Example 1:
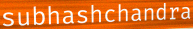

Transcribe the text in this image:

subhashchandra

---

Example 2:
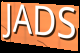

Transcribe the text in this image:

JADS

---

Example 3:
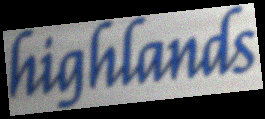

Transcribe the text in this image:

highlands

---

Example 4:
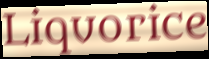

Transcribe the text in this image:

Liquorice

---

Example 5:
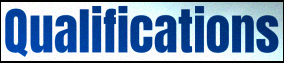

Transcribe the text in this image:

Qualifications